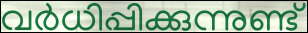
വർധിപ്പിക്കുന്നുണ്ട്